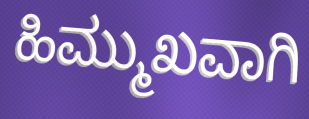
ಹಿಮ್ಮುಖವಾಗಿ